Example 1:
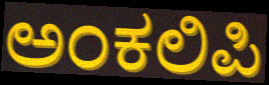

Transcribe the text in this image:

ಅಂಕಲಿಪಿ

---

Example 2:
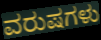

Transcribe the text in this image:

ವರುಷಗಳು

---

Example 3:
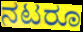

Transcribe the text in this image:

ನಟರೂ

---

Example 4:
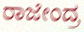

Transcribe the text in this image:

ರಾಜೇಂದ್ರ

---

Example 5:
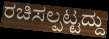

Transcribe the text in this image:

ರಚಿಸಲ್ಪಟ್ಟದ್ದು